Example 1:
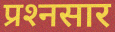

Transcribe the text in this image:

प्रश्‍नसार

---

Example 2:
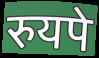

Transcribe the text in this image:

रुयपे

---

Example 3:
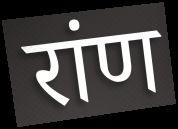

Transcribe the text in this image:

रांण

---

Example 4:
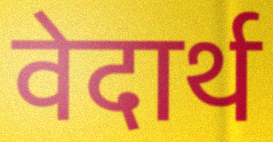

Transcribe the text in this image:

वेदार्थ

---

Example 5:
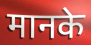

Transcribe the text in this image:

मानके